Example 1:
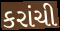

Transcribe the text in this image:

કરાંચી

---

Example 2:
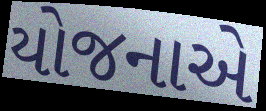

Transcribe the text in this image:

યોજનાએ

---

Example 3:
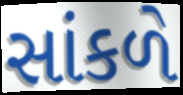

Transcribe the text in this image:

સાંકળે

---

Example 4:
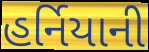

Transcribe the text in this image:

હર્નિયાની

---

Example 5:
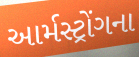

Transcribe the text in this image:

આર્મસ્ટ્રોંગના